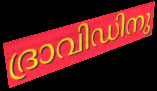
ദ്രാവിഡിനു